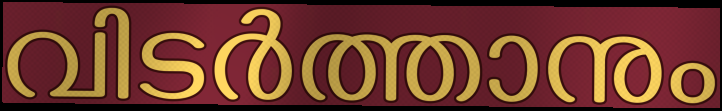
വിടർത്താനും